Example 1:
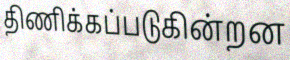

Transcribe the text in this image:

திணிக்கப்படுகின்றன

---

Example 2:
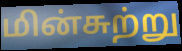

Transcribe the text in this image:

மின்சுற்று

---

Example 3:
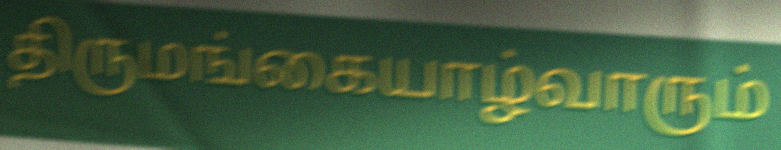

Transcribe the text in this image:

திருமங்கையாழ்வாரும்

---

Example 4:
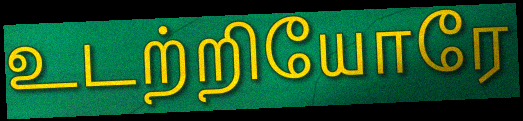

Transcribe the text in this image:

உடற்றியோரே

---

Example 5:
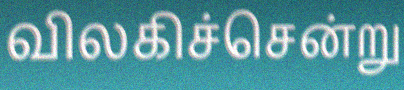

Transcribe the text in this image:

விலகிச்சென்று